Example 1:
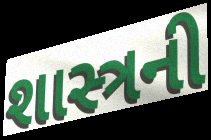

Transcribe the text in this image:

શાસ્ત્રની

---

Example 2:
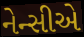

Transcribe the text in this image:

નેન્સીએ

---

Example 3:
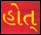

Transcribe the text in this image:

હોત્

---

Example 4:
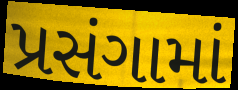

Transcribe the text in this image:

પ્રસંગામાં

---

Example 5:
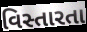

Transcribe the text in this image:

વિસ્તારતા